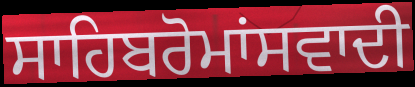
ਸਾਹਿਬਰੋਮਾਂਸਵਾਦੀ